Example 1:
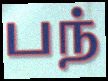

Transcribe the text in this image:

பந்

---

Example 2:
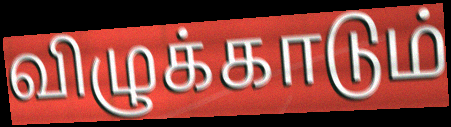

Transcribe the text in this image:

விழுக்காடும்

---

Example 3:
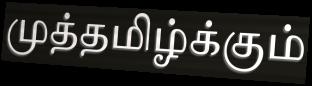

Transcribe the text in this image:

முத்தமிழ்க்கும்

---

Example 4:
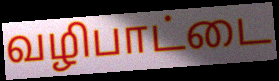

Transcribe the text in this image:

வழிபாட்டை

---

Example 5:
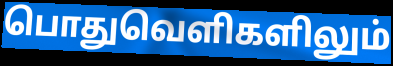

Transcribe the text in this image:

பொதுவெளிகளிலும்